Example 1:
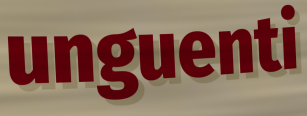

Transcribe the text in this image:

unguenti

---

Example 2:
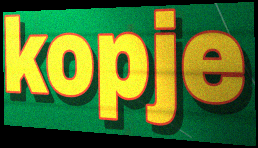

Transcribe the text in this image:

kopje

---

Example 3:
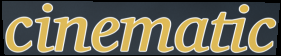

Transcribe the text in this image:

cinematic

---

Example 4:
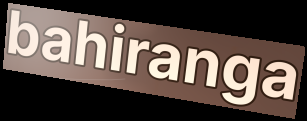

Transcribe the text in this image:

bahiranga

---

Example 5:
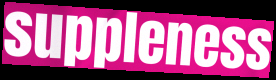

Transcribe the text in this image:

suppleness